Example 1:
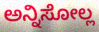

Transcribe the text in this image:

ಅನ್ನಿಸೋಲ್ಲ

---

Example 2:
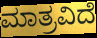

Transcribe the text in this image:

ಮಾತ್ರವಿದೆ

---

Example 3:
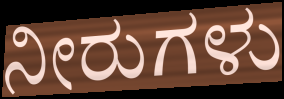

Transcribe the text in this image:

ನೀರುಗಳು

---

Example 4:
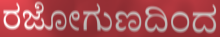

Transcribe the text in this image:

ರಜೋಗುಣದಿಂದ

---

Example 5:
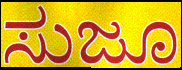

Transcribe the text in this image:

ಸುಜೂ